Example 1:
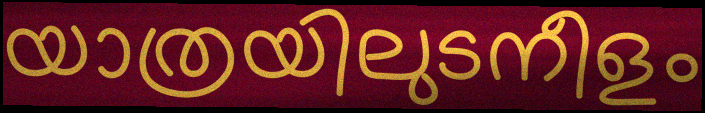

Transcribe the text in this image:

യാത്രയിലുടനീളം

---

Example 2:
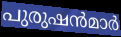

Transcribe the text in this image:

പുരുഷൻമാർ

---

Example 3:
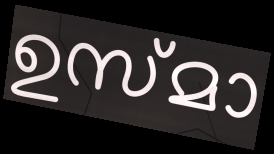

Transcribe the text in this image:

ഉസ്മാ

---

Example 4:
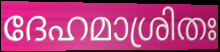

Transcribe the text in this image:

ദേഹമാശ്രിതഃ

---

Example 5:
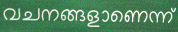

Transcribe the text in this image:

വചനങ്ങളാണെന്ന്